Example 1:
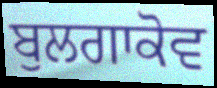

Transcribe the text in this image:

ਬੁਲਗਾਕੋਵ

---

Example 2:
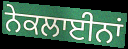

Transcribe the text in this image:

ਨੇਕਲਾਈਨਾਂ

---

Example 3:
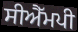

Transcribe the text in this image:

ਸੀਐੱਮਪੀ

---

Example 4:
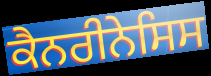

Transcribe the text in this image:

ਕੈਨਰੀਨੇਸਿਸ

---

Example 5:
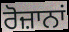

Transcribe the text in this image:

ਰੋਜ਼ਾਨਾਂ